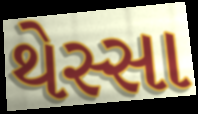
થેસ્સા